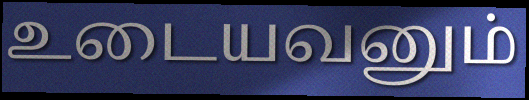
உடையவனும்